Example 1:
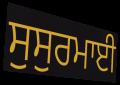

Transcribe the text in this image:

ਸੁਸੁਰਮਾਈ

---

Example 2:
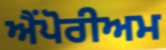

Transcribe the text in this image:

ਐਂਪੋਰੀਅਮ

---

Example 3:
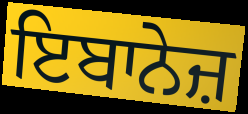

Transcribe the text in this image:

ਇਬਾਨੇਜ਼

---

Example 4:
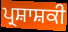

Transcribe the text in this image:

ਪ੍ਰਸ਼ਾਸ਼ਕੀ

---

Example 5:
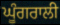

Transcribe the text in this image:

ਘੂੰਗਰਾਲੀ